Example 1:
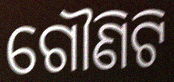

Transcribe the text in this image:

ଗୌଣିଟି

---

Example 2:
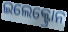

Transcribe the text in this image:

ଇଲେକ୍ଟ୍ରୋନ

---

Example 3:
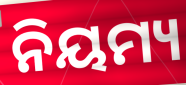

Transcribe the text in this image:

ନିୟମ୍ୟ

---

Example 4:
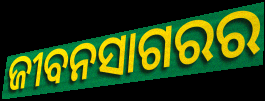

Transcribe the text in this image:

ଜୀବନସାଗରର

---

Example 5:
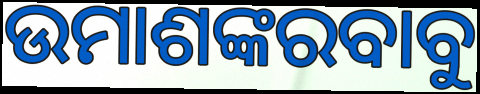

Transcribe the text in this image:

ଉମାଶଙ୍କରବାବୁ